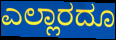
ಎಲ್ಲಾರದೂ